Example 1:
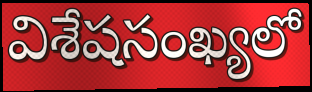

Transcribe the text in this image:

విశేషసంఖ్యలో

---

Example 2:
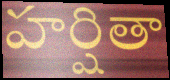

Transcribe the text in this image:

హర్షితా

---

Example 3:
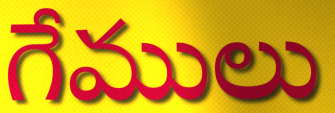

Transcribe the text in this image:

గేములు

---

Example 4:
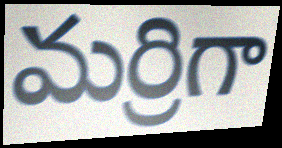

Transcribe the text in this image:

మర్రిగా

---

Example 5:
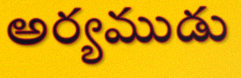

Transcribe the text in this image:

అర్యముడు